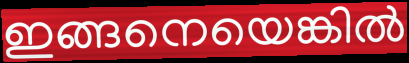
ഇങ്ങനെയെങ്കിൽ